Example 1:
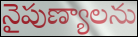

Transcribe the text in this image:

నైపుణ్యాలను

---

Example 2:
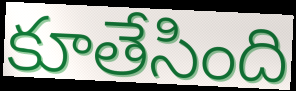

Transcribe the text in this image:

కూతేసింది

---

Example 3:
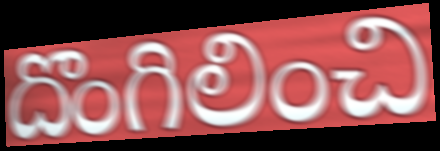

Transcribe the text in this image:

దొంగిలించి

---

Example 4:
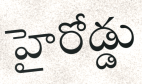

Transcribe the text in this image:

హైరోడ్డు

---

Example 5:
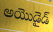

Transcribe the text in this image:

అయొడైడ్